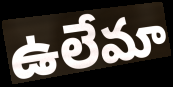
ఉలేమా